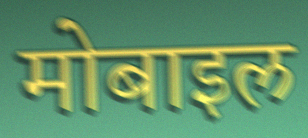
मोबाइल